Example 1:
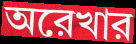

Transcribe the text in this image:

অরেখার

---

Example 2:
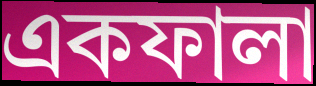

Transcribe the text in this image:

একফালা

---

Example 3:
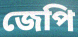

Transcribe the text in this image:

জেপি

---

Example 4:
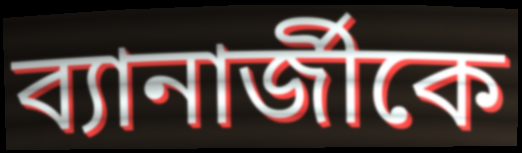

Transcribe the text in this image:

ব্যানার্জীকে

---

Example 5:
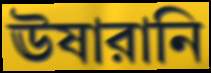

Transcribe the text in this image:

ঊষারানি